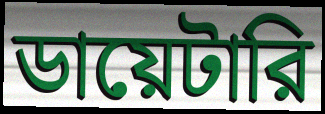
ডায়েটারি